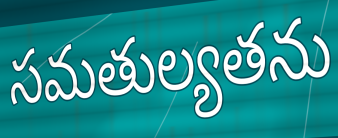
సమతుల్యతను